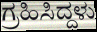
ಗ್ರಹಿಸಿದ್ದಳು